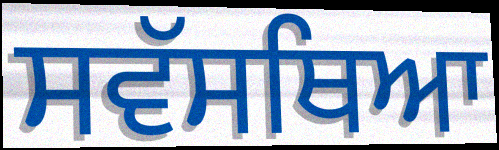
ਸਵੱਸਥਿਆ